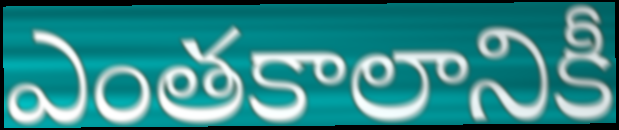
ఎంతకాలానికీ